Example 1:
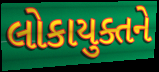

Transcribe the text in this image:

લોકાયુક્તને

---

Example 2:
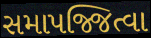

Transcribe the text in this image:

સમાપજ્જિત્વા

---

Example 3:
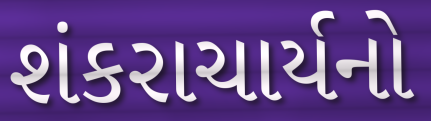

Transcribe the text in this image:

શંકરાચાર્યનો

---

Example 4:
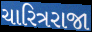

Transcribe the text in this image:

ચારિત્રરાજા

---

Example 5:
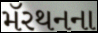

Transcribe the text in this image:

મૅરથનના